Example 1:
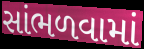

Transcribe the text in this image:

સાંભળવામાં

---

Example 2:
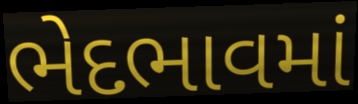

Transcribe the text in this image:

ભેદભાવમાં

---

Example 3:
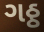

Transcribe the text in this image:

ગઠ્ઠ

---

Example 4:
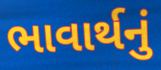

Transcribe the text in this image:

ભાવાર્થનું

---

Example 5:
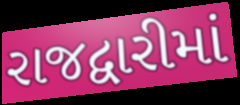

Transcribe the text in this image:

રાજદ્વારીમાં